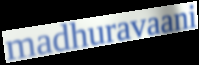
madhuravaani